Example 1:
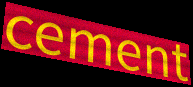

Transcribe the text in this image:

cement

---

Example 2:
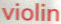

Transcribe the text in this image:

violin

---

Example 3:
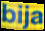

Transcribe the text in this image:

bija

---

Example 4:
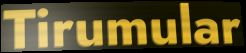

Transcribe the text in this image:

Tirumular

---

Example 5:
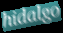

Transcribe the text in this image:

hidalgo